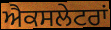
ਐਕਸਲੇਟਰਾਂ